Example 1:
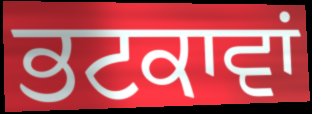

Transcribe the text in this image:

ਭਟਕਾਵਾਂ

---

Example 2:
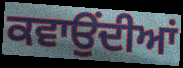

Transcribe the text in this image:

ਕਵਾਉਂਦੀਆਂ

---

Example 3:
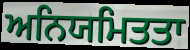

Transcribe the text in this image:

ਅਨਿਯਮਿਤਤਾ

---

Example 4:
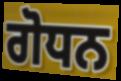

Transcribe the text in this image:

ਗੋਧਨ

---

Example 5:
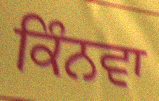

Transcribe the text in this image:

ਕਿੰਨਵਾ